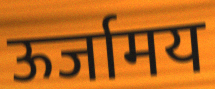
ऊर्जामय